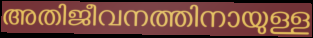
അതിജീവനത്തിനായുള്ള